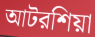
আটরশিয়া